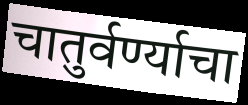
चातुर्वर्ण्याचा